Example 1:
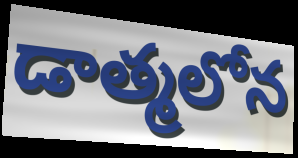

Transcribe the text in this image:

డాత్మలోన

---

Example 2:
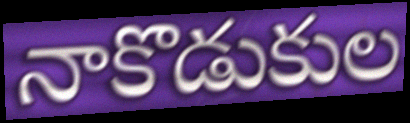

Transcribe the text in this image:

నాకొడుకుల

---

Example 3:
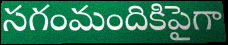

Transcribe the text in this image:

సగంమందికిపైగా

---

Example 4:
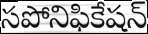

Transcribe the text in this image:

సపోనిఫికేషన్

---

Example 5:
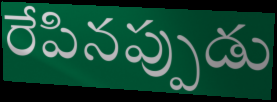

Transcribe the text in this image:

రేపినప్పుడు